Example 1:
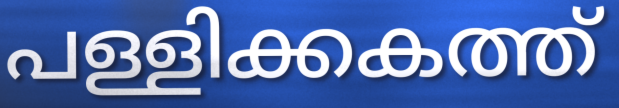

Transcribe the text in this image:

പള്ളിക്കകത്ത്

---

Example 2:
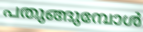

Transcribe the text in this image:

പതുങ്ങുമ്പോൾ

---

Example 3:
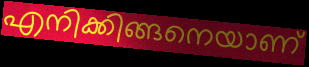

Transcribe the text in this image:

എനിക്കിങ്ങനെയാണ്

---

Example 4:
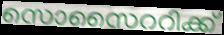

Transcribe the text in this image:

സൊസൈററിക്ക്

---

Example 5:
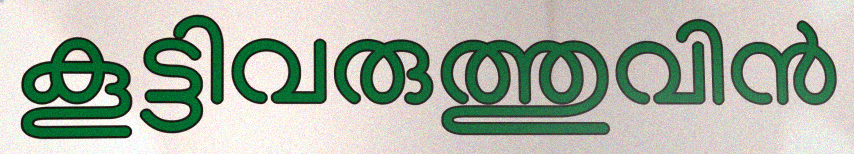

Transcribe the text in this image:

കൂട്ടിവരുത്തുവിൻ